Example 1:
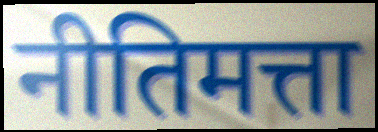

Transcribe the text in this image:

नीतिमत्ता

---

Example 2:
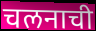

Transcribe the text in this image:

चलनाची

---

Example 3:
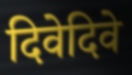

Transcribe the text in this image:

दिवेदिवे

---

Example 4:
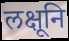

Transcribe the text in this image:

लक्षूनि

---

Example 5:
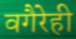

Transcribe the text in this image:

वगैरेही